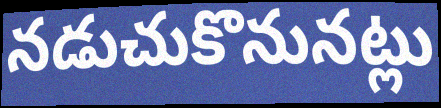
నడుచుకొనునట్లు